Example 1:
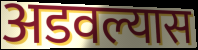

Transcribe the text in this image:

अडवल्यास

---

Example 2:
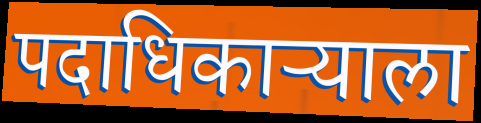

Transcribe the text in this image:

पदाधिकाऱ्याला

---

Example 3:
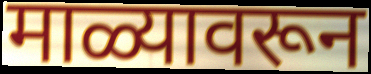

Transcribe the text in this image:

माळ्यावरून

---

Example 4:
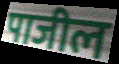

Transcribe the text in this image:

पाजील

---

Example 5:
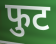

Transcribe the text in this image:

फुट